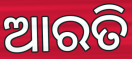
ଆରତି